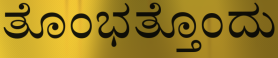
ತೊಂಭತ್ತೊಂದು